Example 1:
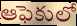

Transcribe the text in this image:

ఆఫెకులో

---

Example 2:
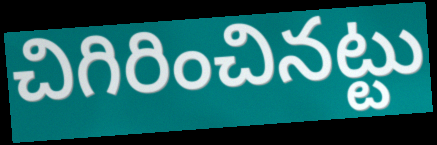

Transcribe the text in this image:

చిగిరించినట్టు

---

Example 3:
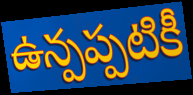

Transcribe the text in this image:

ఉన్పప్పటికీ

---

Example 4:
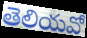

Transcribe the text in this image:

తెలియవో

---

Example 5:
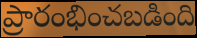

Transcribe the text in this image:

ప్రారంభించబడింది